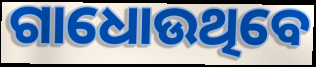
ଗାଧୋଉଥିବେ